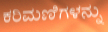
ಕರಿಮಣಿಗಳನ್ನು